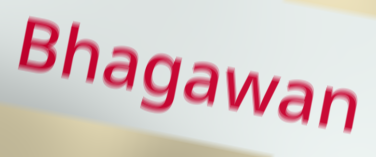
Bhagawan